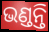
ଭଣ୍ଡନ୍ତି